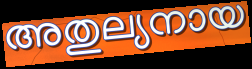
അതുല്യനായ